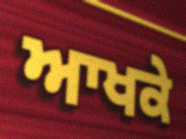
ਆਖਕੇ